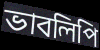
ভাবলিপি